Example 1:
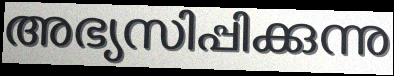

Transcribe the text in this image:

അഭ്യസിപ്പിക്കുന്നു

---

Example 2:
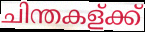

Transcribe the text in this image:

ചിന്തകള്ക്ക്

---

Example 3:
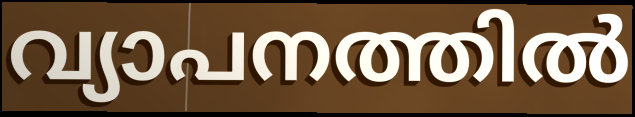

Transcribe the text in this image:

വ്യാപനത്തിൽ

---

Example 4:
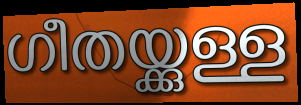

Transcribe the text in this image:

ഗീതയ്ക്കുള്ള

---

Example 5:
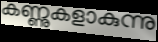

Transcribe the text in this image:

കണ്ണുകളാകുന്നു